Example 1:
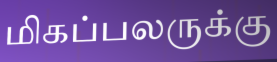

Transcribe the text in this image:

மிகப்பலருக்கு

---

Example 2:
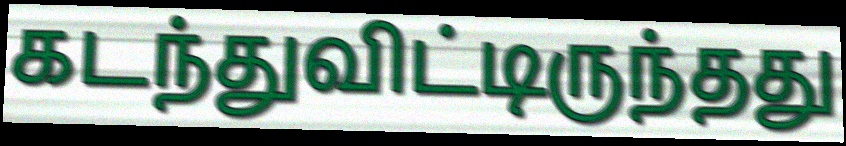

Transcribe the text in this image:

கடந்துவிட்டிருந்தது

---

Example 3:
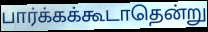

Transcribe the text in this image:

பார்க்கக்கூடாதென்று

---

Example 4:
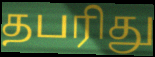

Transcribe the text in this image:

தபரிது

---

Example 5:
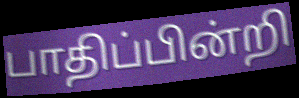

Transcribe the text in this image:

பாதிப்பின்றி